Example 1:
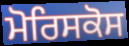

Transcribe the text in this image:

ਮੋਰਿਸਕੋਸ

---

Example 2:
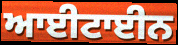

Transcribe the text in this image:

ਆਈਟਾਈਨ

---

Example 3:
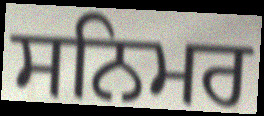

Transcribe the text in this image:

ਸਨਿਮਰ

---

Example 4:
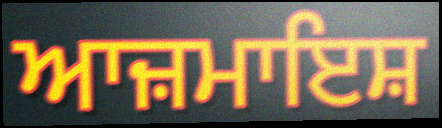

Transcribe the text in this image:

ਆਜ਼ਮਾਇਸ਼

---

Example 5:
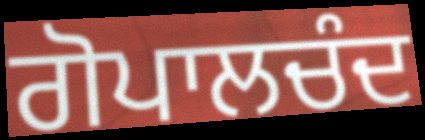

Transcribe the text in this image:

ਗੋਪਾਲਚੰਦ